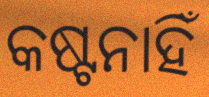
କଷ୍ଟନାହିଁ